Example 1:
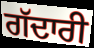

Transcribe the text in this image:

ਗੱਦਾਰੀ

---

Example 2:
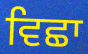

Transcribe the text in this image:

ਵਿਛਾ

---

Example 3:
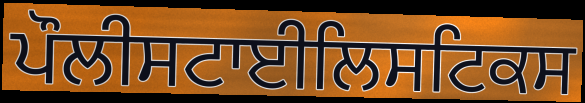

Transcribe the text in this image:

ਪੌਲੀਸਟਾਈਲਿਸਟਿਕਸ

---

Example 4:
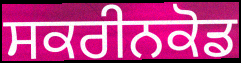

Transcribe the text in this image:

ਸਕਰੀਨਕੋਡ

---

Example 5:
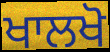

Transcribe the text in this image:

ਖਾਲਖੋ